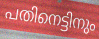
പതിനെട്ടിനും